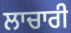
ਲਾਚਾਰੀ